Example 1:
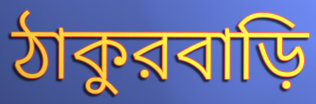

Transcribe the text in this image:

ঠাকুরবাড়ি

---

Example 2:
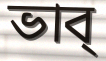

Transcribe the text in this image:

ভাব্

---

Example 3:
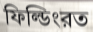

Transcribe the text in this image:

ফিল্ডিংরত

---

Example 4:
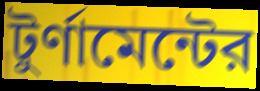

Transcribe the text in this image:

টুর্ণামেন্টের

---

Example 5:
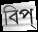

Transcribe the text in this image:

বিপ্